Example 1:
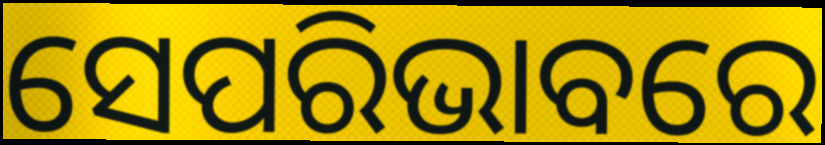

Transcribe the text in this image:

ସେପରିଭାବରେ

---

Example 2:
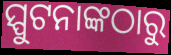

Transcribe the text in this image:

ସ୍ପୁଟନାଙ୍କଠାରୁ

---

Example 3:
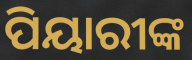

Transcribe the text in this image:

ପିୟାରୀଙ୍କ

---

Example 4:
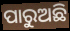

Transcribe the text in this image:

ପାରୁଅଛି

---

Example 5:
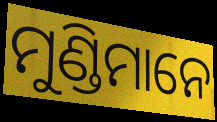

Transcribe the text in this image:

ମୁଣ୍ଡିମାନେ